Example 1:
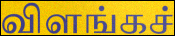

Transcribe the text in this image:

விளங்கச்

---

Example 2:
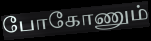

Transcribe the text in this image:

போகோணும்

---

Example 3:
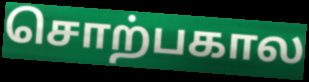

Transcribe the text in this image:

சொற்பகால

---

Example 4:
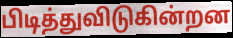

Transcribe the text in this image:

பிடித்துவிடுகின்றன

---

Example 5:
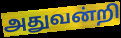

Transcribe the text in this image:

அதுவன்றி